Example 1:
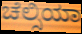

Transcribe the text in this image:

ಚೆಲ್ಸಿಯಾ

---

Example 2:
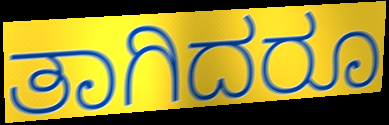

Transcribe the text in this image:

ತಾಗಿದರೂ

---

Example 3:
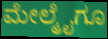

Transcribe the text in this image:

ಮೇಲ್ಮೈಗೂ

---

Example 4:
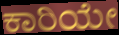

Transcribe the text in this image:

ಕಾರಿಯೇ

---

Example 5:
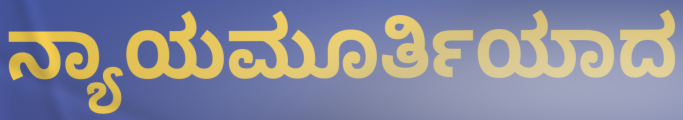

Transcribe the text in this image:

ನ್ಯಾಯಮೂರ್ತಿಯಾದ